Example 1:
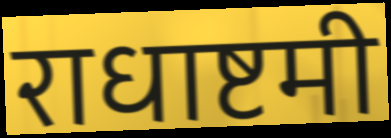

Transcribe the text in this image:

राधाष्टमी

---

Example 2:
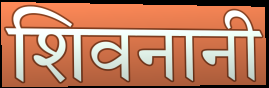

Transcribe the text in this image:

शिवनानी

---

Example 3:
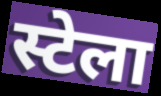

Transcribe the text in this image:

स्टेला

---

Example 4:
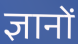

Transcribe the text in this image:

ज्ञानों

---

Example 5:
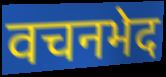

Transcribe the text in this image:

वचनभेद